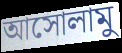
আসোলামু